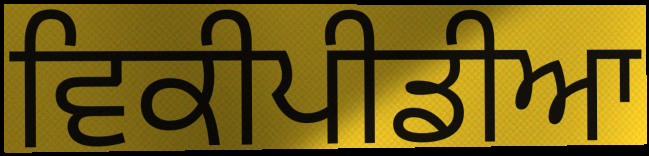
ਵਿਕੀਪੀਡੀਆ